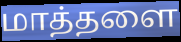
மாத்தளை